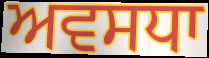
ਅਵਸਧਾ